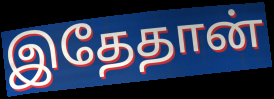
இதேதான்